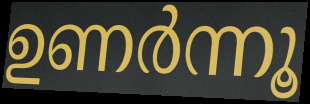
ഉണർന്നൂ